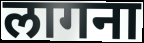
लागना